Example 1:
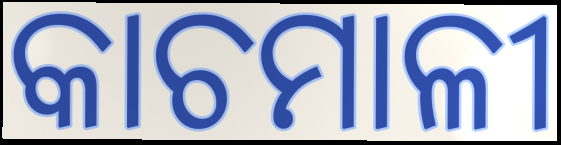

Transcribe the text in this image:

କାଚମାଳୀ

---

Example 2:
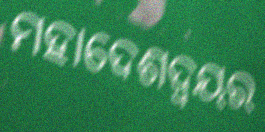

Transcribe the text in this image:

ମହାଦେଶଦ୍ଵୟର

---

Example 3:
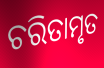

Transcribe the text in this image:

ଚରିତାମୃତ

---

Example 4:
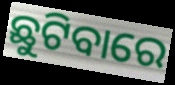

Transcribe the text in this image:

ଛୁଟିବାରେ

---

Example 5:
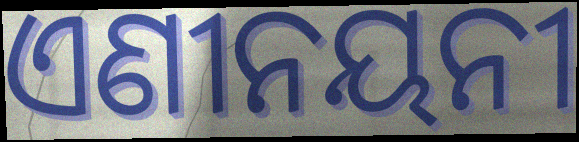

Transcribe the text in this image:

ଏଣୀନୟନୀ